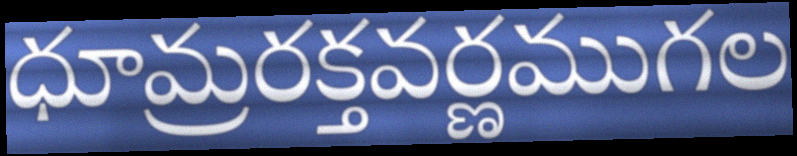
ధూమ్రరక్తవర్ణముగల